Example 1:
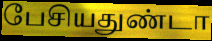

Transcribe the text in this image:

பேசியதுண்டா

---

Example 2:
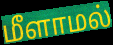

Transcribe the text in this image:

மீளாமல்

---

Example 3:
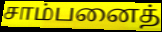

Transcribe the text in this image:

சாம்பனைத்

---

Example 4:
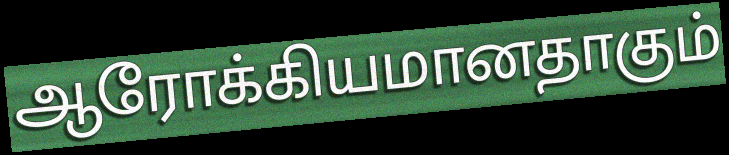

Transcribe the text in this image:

ஆரோக்கியமானதாகும்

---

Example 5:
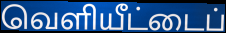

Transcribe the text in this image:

வெளியீட்டைப்